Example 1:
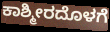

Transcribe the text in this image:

ಕಾಶ್ಮೀರದೊಳಗೆ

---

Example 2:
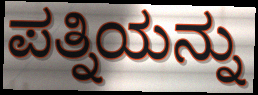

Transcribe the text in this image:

ಪತ್ನಿಯನ್ನು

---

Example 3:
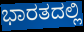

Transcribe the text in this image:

ಭಾರತದಲ್ಲಿ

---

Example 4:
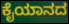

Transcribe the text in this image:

ಕೈಯಾನದ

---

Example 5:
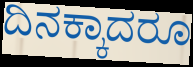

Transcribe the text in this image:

ದಿನಕ್ಕಾದರೂ